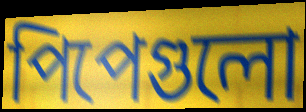
পিপেগুলো